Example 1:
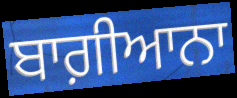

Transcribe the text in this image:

ਬਾਗ਼ੀਆਨਾ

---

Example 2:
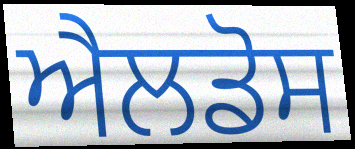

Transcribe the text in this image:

ਐਲਡੋਸ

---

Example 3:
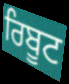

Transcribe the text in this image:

ਰਿਬੂਟ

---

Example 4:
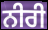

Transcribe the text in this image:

ਨੀਰੀ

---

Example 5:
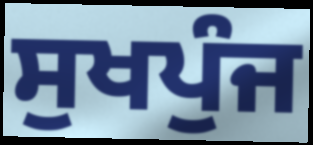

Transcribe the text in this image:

ਸੁਖਪੁੰਜ